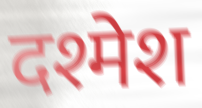
दश्मेश